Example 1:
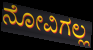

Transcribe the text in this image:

ನೋವಿಗಲ್ಲ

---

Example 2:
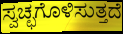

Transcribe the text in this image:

ಸ್ವಚ್ಛಗೊಳಿಸುತ್ತದೆ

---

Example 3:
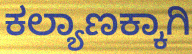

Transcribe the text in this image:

ಕಲ್ಯಾಣಕ್ಕಾಗಿ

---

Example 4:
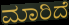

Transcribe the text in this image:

ಮಾರಿದೆ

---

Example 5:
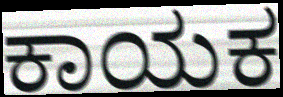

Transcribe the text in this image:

ಕಾಯಕ